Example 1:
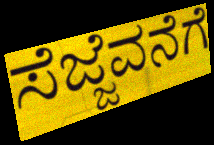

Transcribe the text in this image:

ಸೆಜ್ಜೆವನೆಗೆ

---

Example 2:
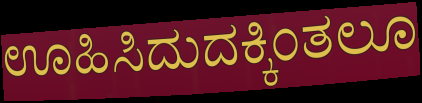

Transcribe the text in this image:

ಊಹಿಸಿದುದಕ್ಕಿಂತಲೂ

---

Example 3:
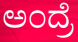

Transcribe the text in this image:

ಅಂದ್ರೆ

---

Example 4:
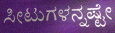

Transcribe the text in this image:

ಸೀಟುಗಳನ್ನಷ್ಟೇ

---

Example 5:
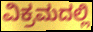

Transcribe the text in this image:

ವಿಕ್ರಮದಲ್ಲಿ